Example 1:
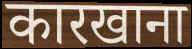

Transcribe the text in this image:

कारखाना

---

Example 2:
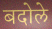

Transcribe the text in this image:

बदोले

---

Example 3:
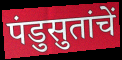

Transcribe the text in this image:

पंडुसुतांचें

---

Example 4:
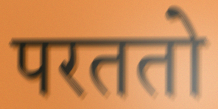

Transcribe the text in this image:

परततो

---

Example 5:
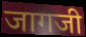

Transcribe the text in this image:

जागजी